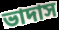
ভাদাস